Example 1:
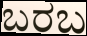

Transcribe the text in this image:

ಬರಬ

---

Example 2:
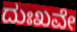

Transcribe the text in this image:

ದುಃಖವೇ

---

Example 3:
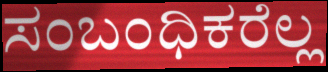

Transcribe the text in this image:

ಸಂಬಂಧಿಕರೆಲ್ಲ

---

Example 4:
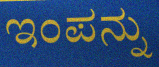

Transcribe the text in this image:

ಇಂಪನ್ನು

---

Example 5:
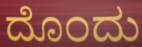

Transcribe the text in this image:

ದೊಂದು